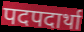
पदपदार्था